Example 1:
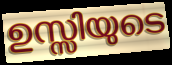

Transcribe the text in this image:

ഉസ്സിയുടെ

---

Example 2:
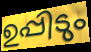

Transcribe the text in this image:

ഉപ്പിടും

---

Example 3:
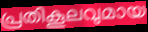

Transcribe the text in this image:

പ്രതികൂലവുമായ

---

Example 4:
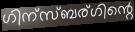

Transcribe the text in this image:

ഗിന്സ്ബര്ഗിന്റെ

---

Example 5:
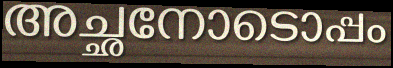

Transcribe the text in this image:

അച്ഛനോടൊപ്പം